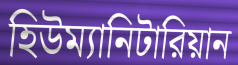
হিউম্যানিটারিয়ান